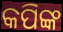
କପିଙ୍କ